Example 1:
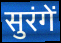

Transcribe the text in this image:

सुरंगें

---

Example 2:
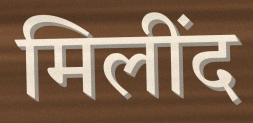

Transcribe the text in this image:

मिलींद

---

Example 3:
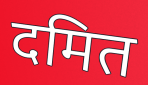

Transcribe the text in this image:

दमित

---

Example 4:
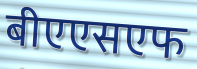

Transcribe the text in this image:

बीएएसएफ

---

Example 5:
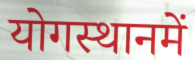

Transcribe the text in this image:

योगस्थानमें